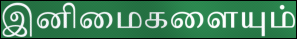
இனிமைகளையும்